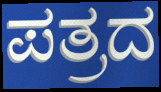
ಪತ್ರದ